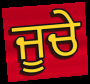
ਜੂਚੇ